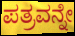
ಪತ್ರವನ್ನೇ